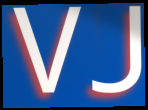
VJ